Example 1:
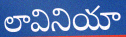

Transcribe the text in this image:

లావినియా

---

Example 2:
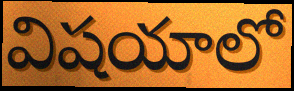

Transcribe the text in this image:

విషయాలో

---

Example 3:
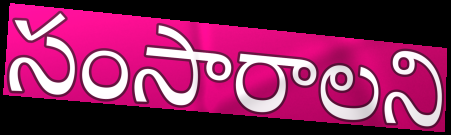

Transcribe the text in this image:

సంసారాలని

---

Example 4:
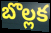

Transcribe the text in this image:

బొల్లక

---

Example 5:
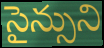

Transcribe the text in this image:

సైన్సుని